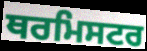
ਥਰਮਿਸਟਰ